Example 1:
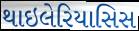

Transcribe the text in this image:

થાઇલેરિયાસિસ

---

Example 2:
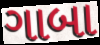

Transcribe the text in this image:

ગાબા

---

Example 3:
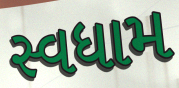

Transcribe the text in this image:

સ્વધામ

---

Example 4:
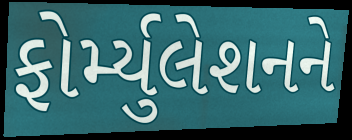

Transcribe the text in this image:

ફોર્મ્યુલેશનને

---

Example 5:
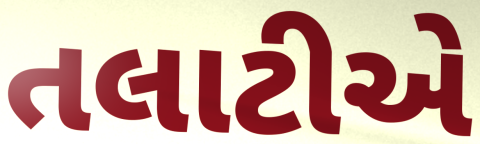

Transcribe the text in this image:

તલાટીએ